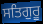
ਸਤਿਗੁਰੂ